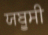
ਯਬੂਸੀ